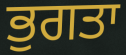
ਭੁਗਤਾ